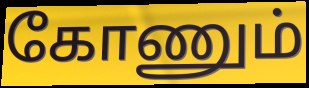
கோணும்